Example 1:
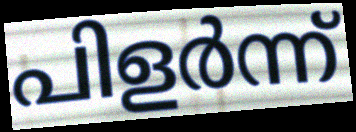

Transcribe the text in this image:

പിളർന്ന്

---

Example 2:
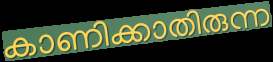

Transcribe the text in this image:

കാണിക്കാതിരുന്ന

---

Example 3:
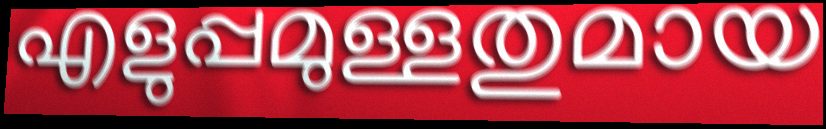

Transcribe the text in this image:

എളുപ്പമുള്ളതുമായ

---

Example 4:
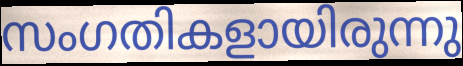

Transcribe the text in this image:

സംഗതികളായിരുന്നു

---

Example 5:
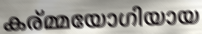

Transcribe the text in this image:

കര്മ്മയോഗിയായ